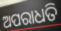
ଅପରାଧତି